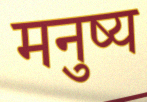
मनुष्‍य